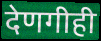
देणगीही